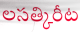
లసత్కిరీట